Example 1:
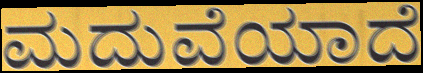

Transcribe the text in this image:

ಮದುವೆಯಾದೆ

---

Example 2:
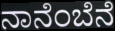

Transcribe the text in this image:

ನಾನೆಂಬೆನೆ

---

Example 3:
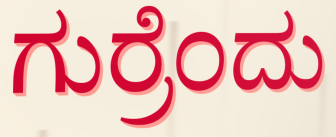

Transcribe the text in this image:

ಗುರ್ರೆಂದು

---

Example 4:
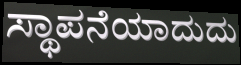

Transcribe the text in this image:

ಸ್ಥಾಪನೆಯಾದುದು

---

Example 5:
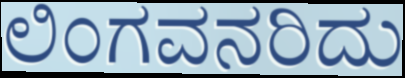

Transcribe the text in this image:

ಲಿಂಗವನರಿದು